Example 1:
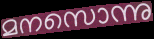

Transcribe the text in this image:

മനസൊന്നു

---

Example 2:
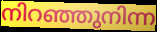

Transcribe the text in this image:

നിറഞ്ഞുനിന്ന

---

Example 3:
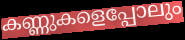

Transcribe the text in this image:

കണ്ണുകളെപ്പോലും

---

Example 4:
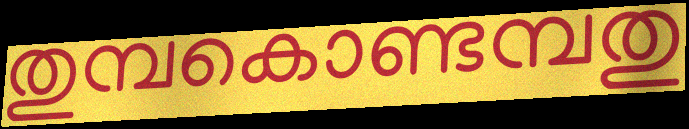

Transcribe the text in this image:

തുമ്പകൊണ്ടമ്പതു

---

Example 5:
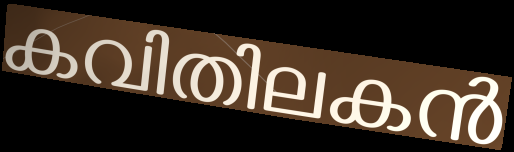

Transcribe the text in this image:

കവിതിലകൻ